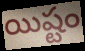
యిష్టం